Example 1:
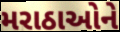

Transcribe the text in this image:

મરાઠાઓને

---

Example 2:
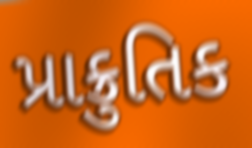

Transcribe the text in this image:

પ્રાક્રુતિક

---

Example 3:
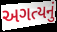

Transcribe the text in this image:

અગત્યનું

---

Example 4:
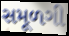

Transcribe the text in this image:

સમૂળગી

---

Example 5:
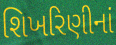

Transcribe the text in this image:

શિખરિણીનાં